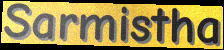
Sarmistha